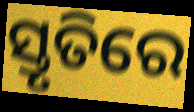
ସ୍ତୃତିରେ